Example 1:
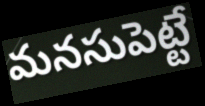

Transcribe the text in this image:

మనసుపెట్టే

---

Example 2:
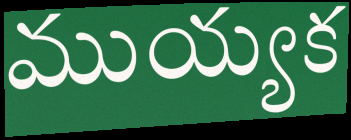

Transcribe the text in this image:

ముయ్యక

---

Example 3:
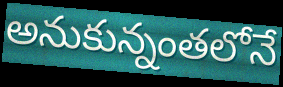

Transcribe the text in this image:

అనుకున్నంతలోనే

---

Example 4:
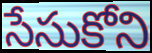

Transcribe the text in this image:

సేసుకోని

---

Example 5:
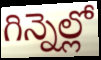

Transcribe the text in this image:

గిన్నెల్లో